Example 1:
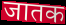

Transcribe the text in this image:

जातक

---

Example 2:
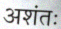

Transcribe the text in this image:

अशंतः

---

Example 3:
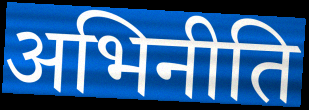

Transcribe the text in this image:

अभिनीति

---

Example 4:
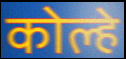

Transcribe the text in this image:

कोल्हे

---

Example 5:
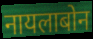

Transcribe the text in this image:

नायलाबोन